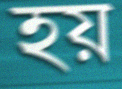
হয়